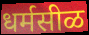
धर्मसीळ